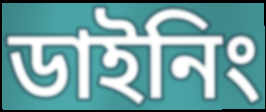
ডাইনিং